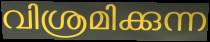
വിശ്രമിക്കുന്ന